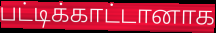
பட்டிக்காட்டானாக